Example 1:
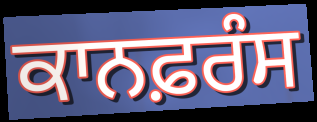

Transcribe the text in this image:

ਕਾਨਫ਼ਰੰਸ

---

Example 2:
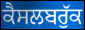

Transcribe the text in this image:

ਕੈਸਲਬਰੁੱਕ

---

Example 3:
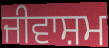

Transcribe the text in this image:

ਜੀਵਾਸ਼ਮ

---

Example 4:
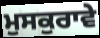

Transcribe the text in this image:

ਮੁਸਕੁਰਾਵੇ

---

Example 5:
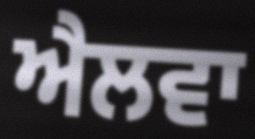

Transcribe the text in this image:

ਐਲਵਾ